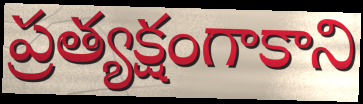
ప్రత్యక్షంగాకాని